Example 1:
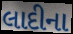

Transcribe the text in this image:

લાદીના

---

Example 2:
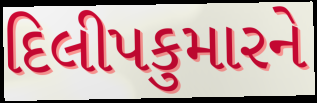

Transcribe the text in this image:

દિલીપકુમારને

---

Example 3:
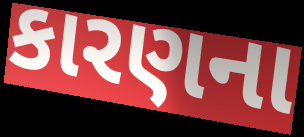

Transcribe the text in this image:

કારણના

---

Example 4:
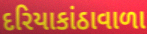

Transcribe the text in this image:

દરિયાકાંઠાવાળા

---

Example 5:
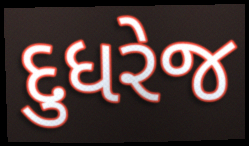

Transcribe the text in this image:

દુધરેજ